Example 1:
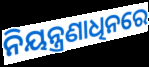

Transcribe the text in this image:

ନିୟନ୍ତ୍ରଣାଧିନରେ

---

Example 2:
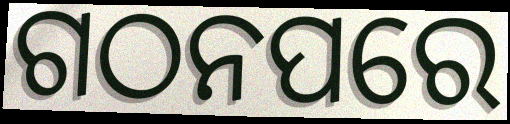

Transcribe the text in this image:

ଗଠନପରେ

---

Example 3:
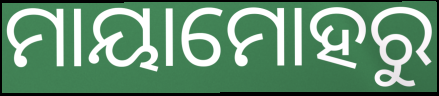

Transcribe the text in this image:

ମାୟାମୋହରୁ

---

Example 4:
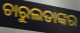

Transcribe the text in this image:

ଚାରୁଲତାଙ୍କର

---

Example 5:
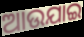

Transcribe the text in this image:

ଆଉଯାଇ